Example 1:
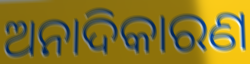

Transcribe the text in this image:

ଅନାଦିକାରଣ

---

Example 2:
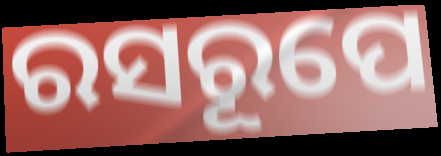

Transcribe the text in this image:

ରସରୂପେ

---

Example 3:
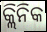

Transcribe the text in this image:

କ୍ଲିନିକ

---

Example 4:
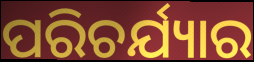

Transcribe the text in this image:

ପରିଚର୍ଯ୍ୟାର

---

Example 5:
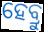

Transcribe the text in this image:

ହେବ୍ରୁ